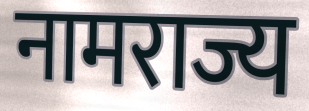
नामराज्य